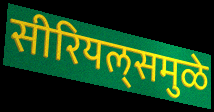
सीरियल्समुळे